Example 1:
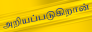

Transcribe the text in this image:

அறியப்படுகிறான்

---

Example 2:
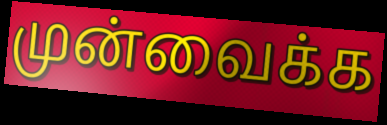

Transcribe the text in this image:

முன்வைக்க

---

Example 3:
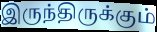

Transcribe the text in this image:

இருந்திருக்கும்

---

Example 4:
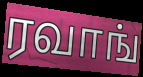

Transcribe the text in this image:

ரவாங்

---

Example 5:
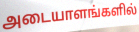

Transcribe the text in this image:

அடையாளங்களில்